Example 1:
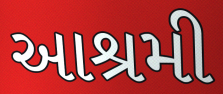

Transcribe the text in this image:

આશ્રમી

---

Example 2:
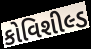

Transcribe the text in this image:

કોવિશીલ્ડ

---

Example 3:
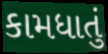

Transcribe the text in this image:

કામધાતું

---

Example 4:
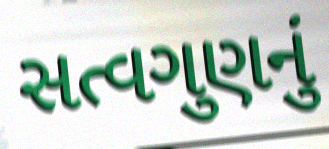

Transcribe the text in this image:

સત્વગુણનું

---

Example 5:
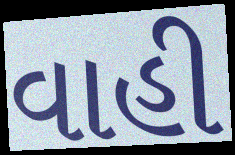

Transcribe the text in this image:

વાહી